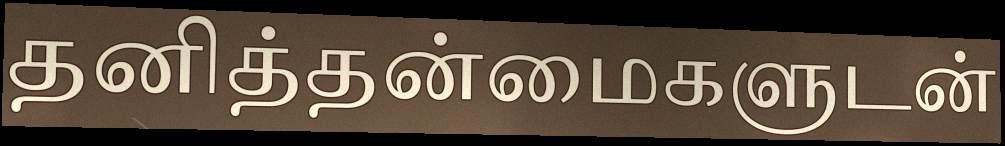
தனித்தன்மைகளுடன்